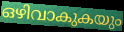
ഒഴിവാകുകയും